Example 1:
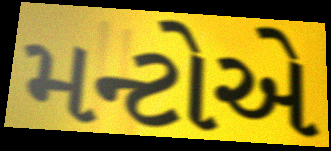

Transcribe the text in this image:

મન્ટોએ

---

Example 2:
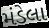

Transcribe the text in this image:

મંડેલા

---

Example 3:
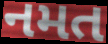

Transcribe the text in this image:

નમત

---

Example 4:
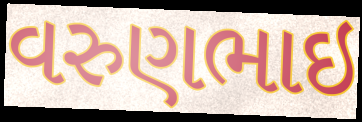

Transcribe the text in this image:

વરુણભાઇ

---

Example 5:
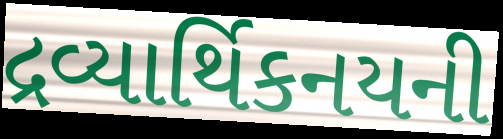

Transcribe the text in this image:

દ્રવ્યાર્થિકનયની